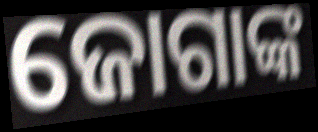
ଜୋଗାଙ୍କ